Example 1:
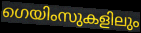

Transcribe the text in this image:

ഗെയിംസുകളിലും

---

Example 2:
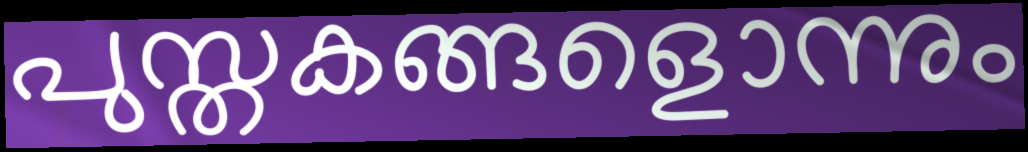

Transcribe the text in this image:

പുസ്തകങ്ങളൊന്നും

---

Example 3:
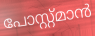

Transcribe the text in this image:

പോസ്റ്റ്മാൻ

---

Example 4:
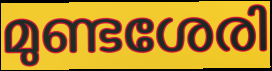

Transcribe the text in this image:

മുണ്ടശേരി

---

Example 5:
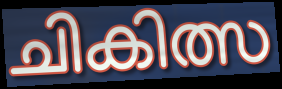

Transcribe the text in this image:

ചികിത്സ